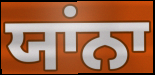
ਯਾਂਨਾ